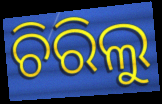
ଚିରିଲୁ